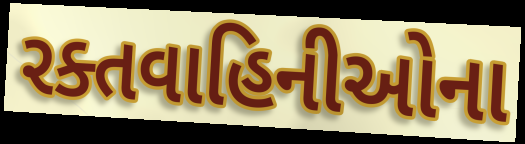
રક્તવાહિનીઓના